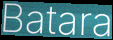
Batara